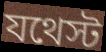
যথেস্ট